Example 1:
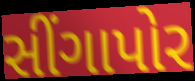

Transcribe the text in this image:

સીંગાપોર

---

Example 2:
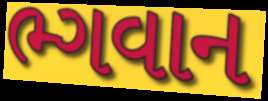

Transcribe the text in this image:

ભ્ગવાન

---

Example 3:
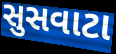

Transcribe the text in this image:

સુસવાટા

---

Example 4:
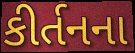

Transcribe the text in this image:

કીર્તનના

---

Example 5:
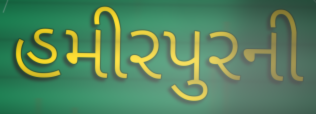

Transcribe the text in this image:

હમીરપુરની